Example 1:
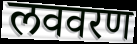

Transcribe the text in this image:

लववरण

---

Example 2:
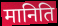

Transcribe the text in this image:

मानिति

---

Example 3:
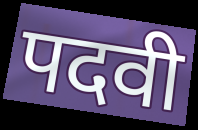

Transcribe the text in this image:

पदवी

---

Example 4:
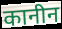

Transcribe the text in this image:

कानीन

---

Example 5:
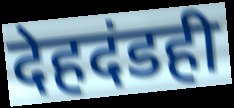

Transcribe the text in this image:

देहदंडही